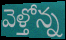
వెళ్తోన్న